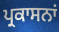
ਪ੍ਰਕਾਸਨਾਂ